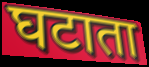
घटाता